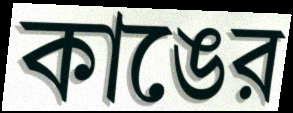
কাঙের